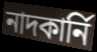
নাদকার্নি